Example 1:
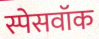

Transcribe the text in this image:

स्पेसवॉक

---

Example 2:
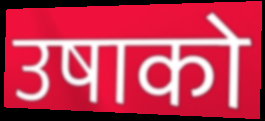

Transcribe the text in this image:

उषाको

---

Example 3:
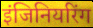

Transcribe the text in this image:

इंजिनियरिंग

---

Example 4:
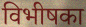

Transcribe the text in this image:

विभीषका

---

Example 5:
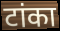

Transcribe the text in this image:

टांका